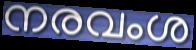
നരവംശ